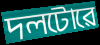
দলটোৱে